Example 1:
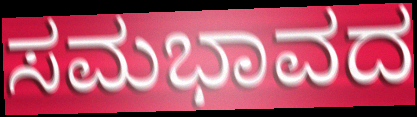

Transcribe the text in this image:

ಸಮಭಾವದ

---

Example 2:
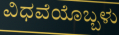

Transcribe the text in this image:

ವಿಧವೆಯೊಬ್ಬಳು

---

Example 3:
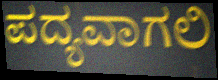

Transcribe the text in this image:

ಪದ್ಯವಾಗಲಿ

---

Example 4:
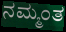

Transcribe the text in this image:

ನಮ್ಮಂತ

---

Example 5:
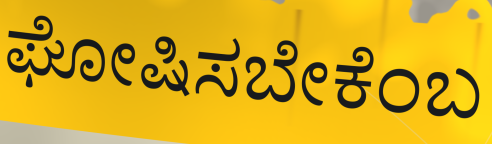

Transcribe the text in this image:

ಘೋಷಿಸಬೇಕೆಂಬ